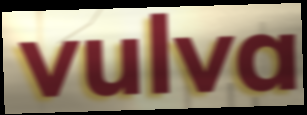
vulva